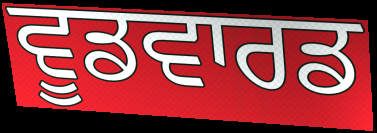
ਵੂਡਵਾਰਡ